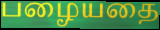
பழையதை